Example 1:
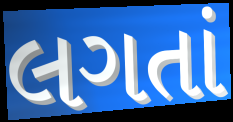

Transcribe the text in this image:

લગતાં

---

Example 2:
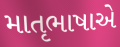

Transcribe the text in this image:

માતૃભાષાએ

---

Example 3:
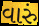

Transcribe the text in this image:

વારું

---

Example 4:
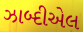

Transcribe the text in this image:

ઝાબ્દીએલ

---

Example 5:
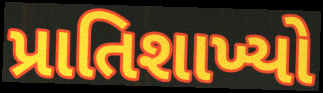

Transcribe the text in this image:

પ્રાતિશાખ્યો